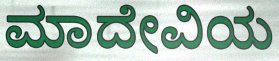
ಮಾದೇವಿಯ